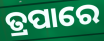
ତ୍ରପାରେ